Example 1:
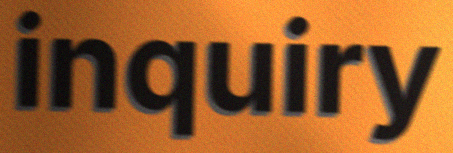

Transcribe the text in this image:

inquiry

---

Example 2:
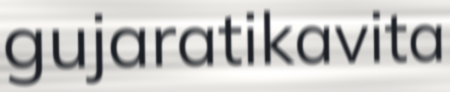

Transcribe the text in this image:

gujaratikavita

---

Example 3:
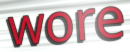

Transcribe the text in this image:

wore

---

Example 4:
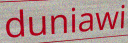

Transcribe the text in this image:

duniawi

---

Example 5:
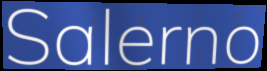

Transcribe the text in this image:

Salerno